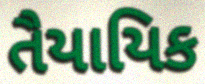
તૈયાયિક